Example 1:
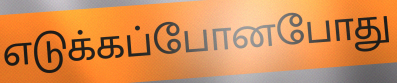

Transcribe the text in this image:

எடுக்கப்போனபோது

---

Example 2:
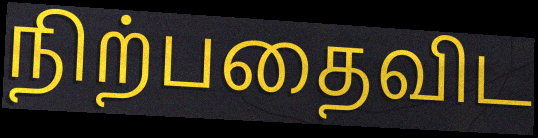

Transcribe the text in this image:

நிற்பதைவிட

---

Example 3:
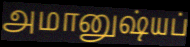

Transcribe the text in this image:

அமானுஷ்யப்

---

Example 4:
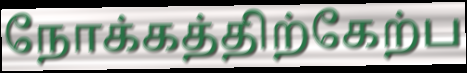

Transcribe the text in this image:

நோக்கத்திற்கேற்ப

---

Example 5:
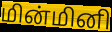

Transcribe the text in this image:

மின்மினி